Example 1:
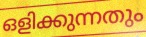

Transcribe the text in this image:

ഒളിക്കുന്നതും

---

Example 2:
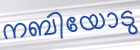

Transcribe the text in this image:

നബിയോടു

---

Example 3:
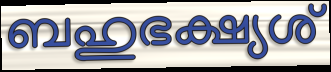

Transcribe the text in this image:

ബഹുഭക്ഷ്യശ്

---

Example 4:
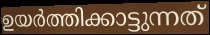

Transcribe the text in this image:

ഉയർത്തിക്കാട്ടുന്നത്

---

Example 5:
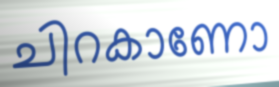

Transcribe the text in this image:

ചിറകാണോ